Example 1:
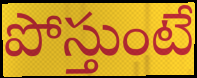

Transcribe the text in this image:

పోస్తుంటే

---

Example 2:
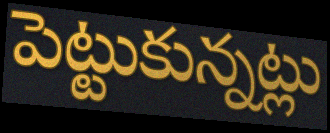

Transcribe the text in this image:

పెట్టుకున్నట్లు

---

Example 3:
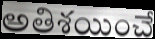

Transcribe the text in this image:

అతిశయించే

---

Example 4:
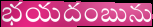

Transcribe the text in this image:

భయదంబును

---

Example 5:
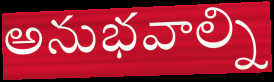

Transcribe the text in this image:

అనుభవాల్ని